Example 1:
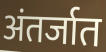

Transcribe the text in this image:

अंतर्जात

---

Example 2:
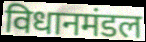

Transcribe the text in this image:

विधानमंडल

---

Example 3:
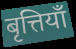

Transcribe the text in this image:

बृत्तियाँ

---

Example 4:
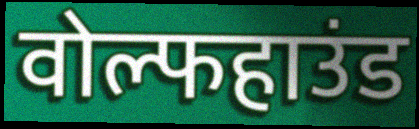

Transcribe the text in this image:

वोल्फहाउंड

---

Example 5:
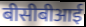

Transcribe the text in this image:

बीसीबीआई